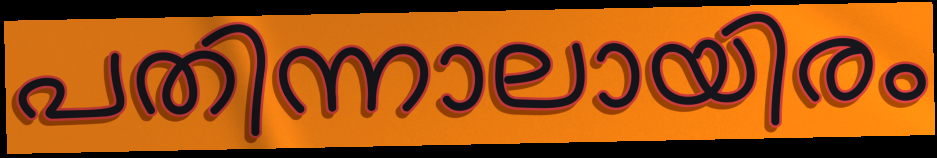
പതിന്നാലായിരം